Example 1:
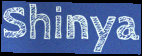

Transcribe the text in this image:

Shinya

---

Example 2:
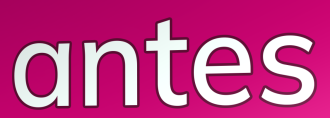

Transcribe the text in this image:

antes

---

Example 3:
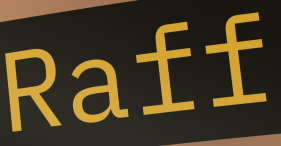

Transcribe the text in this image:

Raff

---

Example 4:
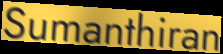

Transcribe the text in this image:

Sumanthiran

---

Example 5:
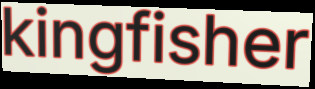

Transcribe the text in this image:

kingfisher